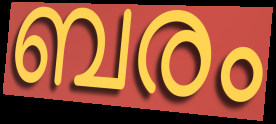
ബരം